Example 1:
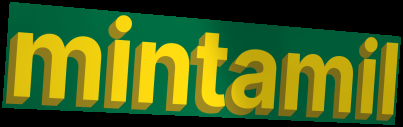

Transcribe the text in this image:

mintamil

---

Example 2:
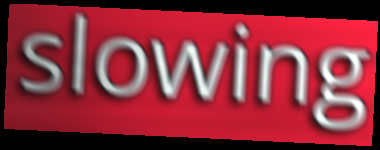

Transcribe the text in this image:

slowing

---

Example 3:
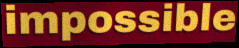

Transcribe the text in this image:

impossible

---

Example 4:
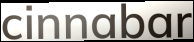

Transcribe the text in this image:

cinnabar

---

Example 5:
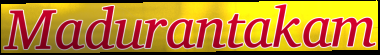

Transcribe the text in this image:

Madurantakam